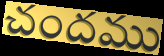
చందము